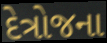
દેત્રોજના